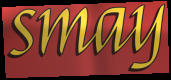
smay